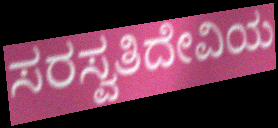
ಸರಸ್ವತಿದೇವಿಯ